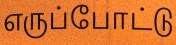
எருப்போட்டு